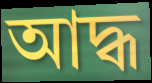
আদ্ধ